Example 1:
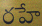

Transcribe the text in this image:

రహే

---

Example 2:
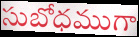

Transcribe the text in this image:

సుబోధముగా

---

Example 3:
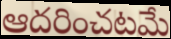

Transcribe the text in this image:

ఆదరించటమే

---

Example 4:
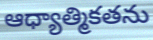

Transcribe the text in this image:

ఆధ్యాత్మికతను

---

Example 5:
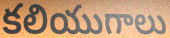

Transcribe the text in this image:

కలియుగాలు